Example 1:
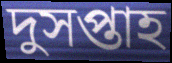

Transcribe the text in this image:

দুসপ্তাহ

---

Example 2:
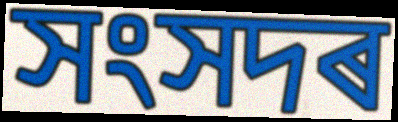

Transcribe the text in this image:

সংসদৰ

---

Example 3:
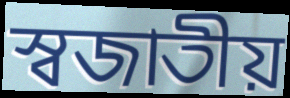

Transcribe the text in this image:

স্বজাতীয়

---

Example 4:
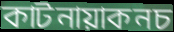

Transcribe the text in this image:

কাটনায়াকনচ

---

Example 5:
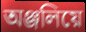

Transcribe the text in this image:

অঞ্জলিয়ে